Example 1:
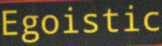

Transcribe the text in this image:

Egoistic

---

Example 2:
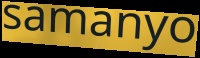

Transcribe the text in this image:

samanyo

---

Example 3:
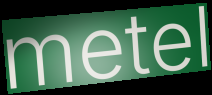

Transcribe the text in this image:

metel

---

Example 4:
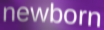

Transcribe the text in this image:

newborn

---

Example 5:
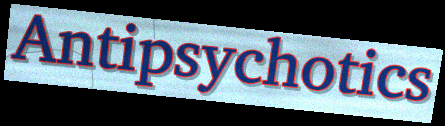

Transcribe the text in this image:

Antipsychotics